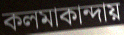
কলমাকান্দায়